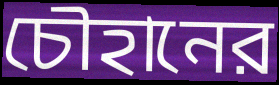
চৌহানের